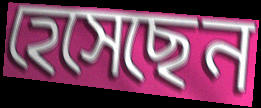
হেসেছেন